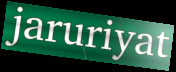
jaruriyat